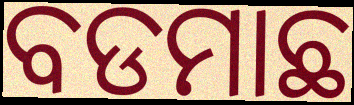
ବଡମାଛ